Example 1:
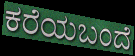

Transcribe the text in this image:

ಕರೆಯಬಂದೆ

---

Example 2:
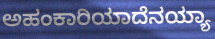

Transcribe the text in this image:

ಅಹಂಕಾರಿಯಾದೆನಯ್ಯಾ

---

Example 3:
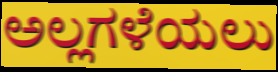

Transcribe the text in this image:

ಅಲ್ಲಗಳೆಯಲು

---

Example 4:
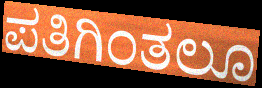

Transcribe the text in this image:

ಪತಿಗಿಂತಲೂ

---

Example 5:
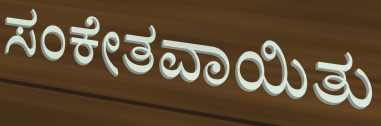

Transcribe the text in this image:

ಸಂಕೇತವಾಯಿತು